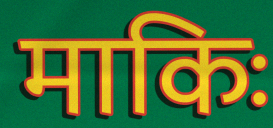
माकिः